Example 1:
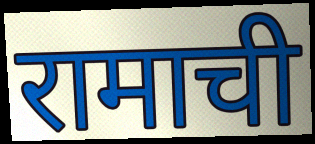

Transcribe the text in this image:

रामाची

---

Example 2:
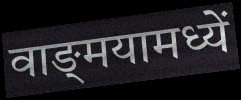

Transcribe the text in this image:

वाङ्‌मयामध्यें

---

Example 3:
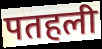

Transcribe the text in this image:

पतहली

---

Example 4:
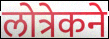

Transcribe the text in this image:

लोत्रेकने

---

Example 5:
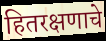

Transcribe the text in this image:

हितरक्षणाचे